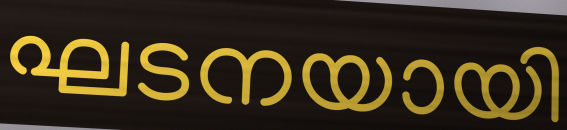
ഘടനയായി